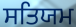
ਸਤਿਯਮ